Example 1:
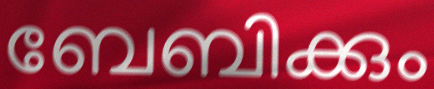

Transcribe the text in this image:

ബേബിക്കും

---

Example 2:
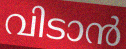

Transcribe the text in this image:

വിടാൻ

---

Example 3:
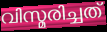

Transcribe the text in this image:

വിസ്മരിച്ചത്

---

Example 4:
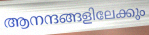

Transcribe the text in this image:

ആനന്ദങ്ങളിലേക്കും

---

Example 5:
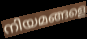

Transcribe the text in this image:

നിയമങ്ങളെ